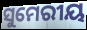
ସୁମେରୀୟ